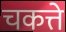
चकत्ते